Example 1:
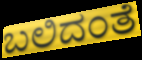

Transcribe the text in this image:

ಬಲಿದಂತೆ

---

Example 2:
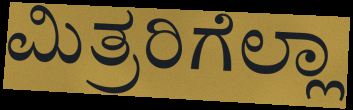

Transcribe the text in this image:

ಮಿತ್ರರಿಗೆಲ್ಲಾ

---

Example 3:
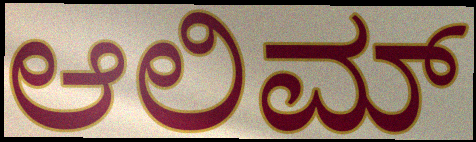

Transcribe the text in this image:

ಆಲಿಮ್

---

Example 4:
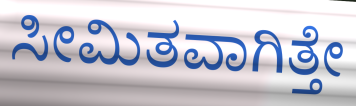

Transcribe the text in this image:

ಸೀಮಿತವಾಗಿತ್ತೇ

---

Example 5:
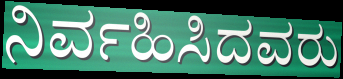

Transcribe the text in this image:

ನಿರ್ವಹಿಸಿದವರು